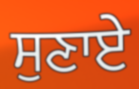
ਸੁਣਾਏ